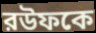
রউফকে